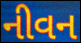
નીવન